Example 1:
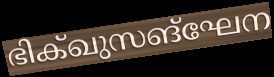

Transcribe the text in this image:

ഭിക്ഖുസങ്ഘേന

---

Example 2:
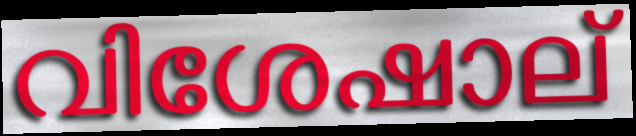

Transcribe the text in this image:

വിശേഷാല്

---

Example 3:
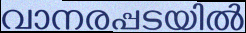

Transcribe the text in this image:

വാനരപ്പടയിൽ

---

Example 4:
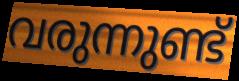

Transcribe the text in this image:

വരുന്നുണ്ട്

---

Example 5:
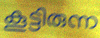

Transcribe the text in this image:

കൂട്ടിരുന്ന